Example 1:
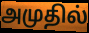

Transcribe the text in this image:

அமுதில்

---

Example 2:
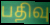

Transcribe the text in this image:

பதிவு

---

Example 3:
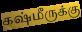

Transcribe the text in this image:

கஷ்மீருக்கு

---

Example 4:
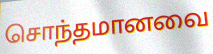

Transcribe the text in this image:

சொந்தமானவை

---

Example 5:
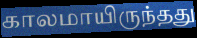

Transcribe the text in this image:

காலமாயிருந்தது